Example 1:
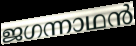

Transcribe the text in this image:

ജഗന്നാഥൻ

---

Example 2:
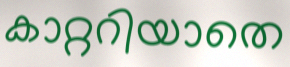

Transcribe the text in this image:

കാറ്ററിയാതെ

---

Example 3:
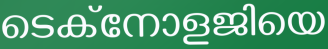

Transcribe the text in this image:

ടെക്‌നോളജിയെ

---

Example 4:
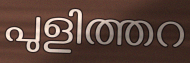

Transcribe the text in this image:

പുളിത്തറ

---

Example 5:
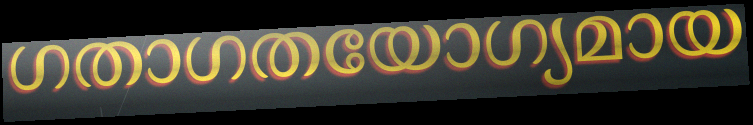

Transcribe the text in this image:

ഗതാഗതയോഗ്യമായ